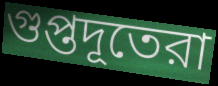
গুপ্তদূতেরা